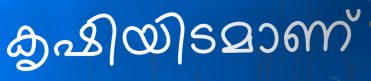
കൃഷിയിടമാണ്